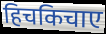
हिचकिचाए